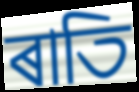
ৰাতি